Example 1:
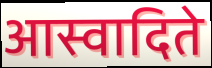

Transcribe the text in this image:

आस्वादिते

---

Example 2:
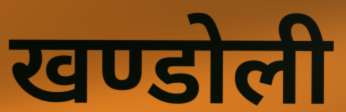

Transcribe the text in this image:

खण्डोली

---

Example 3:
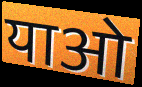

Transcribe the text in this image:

याओ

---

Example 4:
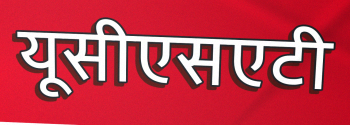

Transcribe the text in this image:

यूसीएसएटी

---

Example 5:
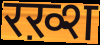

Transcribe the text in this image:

रख़्श